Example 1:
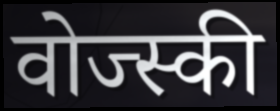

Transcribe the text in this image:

वोज्स्की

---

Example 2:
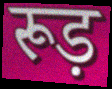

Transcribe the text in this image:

रूड़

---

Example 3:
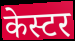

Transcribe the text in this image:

केस्टर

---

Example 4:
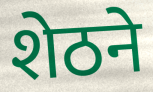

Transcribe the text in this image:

शेठने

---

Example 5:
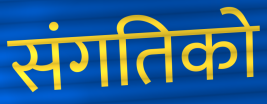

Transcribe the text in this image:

संगतिको